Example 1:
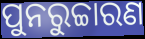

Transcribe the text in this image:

ପୁନରୁଚ୍ଚାରଣ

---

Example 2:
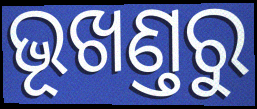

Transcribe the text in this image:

ଭୂଖଣ୍ତରୁ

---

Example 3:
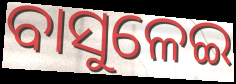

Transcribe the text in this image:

ବାସୁଳେଇ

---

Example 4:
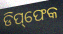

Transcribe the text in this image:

ଡିପ୍‌ଫେକ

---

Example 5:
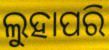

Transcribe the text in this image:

ଲୁହାପରି